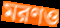
মরণও